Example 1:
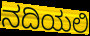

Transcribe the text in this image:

ನದಿಯಲಿ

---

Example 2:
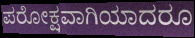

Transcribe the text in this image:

ಪರೋಕ್ಷವಾಗಿಯಾದರೂ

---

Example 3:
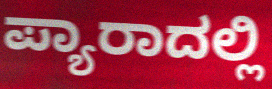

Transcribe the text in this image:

ಪ್ಯಾರಾದಲ್ಲಿ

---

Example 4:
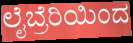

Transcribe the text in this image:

ಲೈಬ್ರೆರಿಯಿಂದ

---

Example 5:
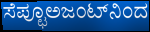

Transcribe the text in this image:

ಸೆಪ್ಟೂಅಜಂಟ್‌ನಿಂದ